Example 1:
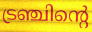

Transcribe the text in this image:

ട്രഞ്ചിന്റെ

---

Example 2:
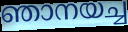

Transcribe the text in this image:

ഞാനയച്ച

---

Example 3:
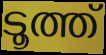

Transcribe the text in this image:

ടൂത്ത്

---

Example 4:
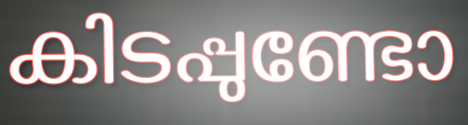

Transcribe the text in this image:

കിടപ്പുണ്ടോ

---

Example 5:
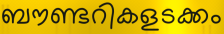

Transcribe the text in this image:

ബൗണ്ടറികളടക്കം